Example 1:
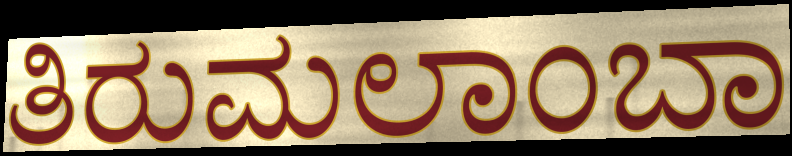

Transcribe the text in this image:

ತಿರುಮಲಾಂಬಾ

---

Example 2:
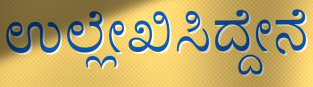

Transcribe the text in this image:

ಉಲ್ಲೇಖಿಸಿದ್ದೇನೆ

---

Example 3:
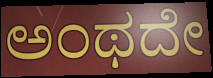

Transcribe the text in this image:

ಅಂಥದೇ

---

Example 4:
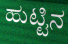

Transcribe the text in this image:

ಹುಟ್ಟಿನ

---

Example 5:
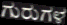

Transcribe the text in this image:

ಗುರುಗಳ